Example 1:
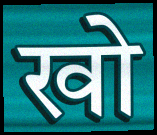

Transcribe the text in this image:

खो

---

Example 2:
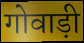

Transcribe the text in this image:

गोवाड़ी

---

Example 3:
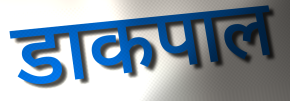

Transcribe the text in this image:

डाकपाल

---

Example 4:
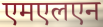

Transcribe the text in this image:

एमएलएन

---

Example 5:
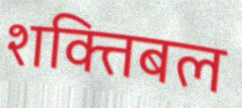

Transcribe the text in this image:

शक्तिबल